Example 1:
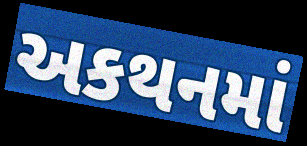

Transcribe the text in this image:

અકથનમાં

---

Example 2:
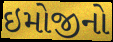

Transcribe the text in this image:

ઇમોજીનો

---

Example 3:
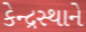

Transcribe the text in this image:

કેન્દ્રસ્થાને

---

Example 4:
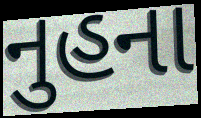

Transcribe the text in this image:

નુહના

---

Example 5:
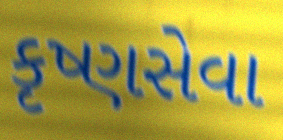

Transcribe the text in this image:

કૃષ્ણસેવા